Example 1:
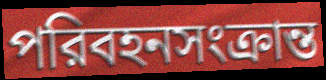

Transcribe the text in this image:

পরিবহনসংক্রান্ত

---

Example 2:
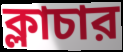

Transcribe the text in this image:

ক্লাচার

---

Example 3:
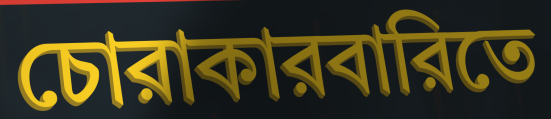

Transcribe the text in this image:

চোরাকারবারিতে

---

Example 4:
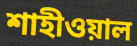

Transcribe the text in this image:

শাহীওয়াল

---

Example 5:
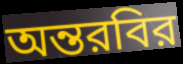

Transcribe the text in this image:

অন্তরবির